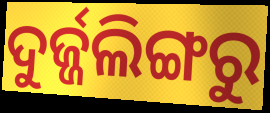
ଦୁର୍ଜ୍ଜଲିଙ୍ଗରୁ